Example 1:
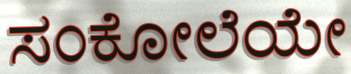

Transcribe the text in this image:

ಸಂಕೋಲೆಯೇ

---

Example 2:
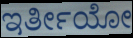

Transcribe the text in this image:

ಇರ್ತೀಯೋ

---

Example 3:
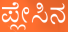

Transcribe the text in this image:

ಪ್ಲೇಸಿನ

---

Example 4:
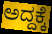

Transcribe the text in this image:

ಅದ್ದಕ್ಕೆ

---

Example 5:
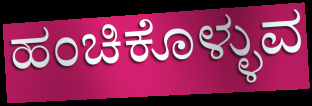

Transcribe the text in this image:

ಹಂಚಿಕೊಳ್ಳುವ